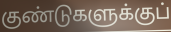
குண்டுகளுக்குப்